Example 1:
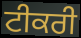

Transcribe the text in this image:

ਟੀਕਰੀ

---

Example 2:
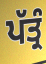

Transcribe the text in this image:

ਪੱਤ੍ਰੰ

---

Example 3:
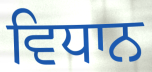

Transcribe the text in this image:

ਵਿਧਾਨ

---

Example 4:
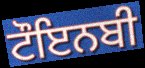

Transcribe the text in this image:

ਟੌਇਨਬੀ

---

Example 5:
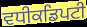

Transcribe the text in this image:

ਵਧੀਕਡਿਪਟੀ